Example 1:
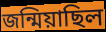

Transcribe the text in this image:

জন্মিয়াছিল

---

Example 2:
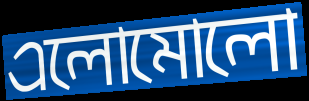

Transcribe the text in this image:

এলোমোলো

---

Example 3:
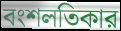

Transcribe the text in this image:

বংশলতিকার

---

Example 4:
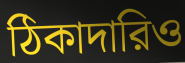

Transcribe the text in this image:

ঠিকাদারিও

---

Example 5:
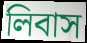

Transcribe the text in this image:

লিবাস